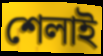
শেলাই